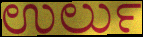
ಉರ್ಲು